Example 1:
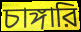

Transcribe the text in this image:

চাঙ্গারি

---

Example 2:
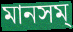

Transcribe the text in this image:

মানসম্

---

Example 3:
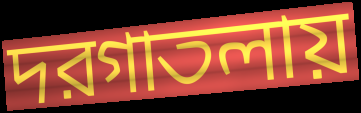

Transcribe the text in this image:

দরগাতলায়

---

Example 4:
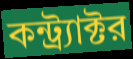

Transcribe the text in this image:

কন্ট্র্যাক্টর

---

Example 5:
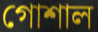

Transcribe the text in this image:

গোশাল